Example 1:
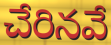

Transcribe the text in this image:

చేరినవే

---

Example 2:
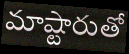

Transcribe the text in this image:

మాష్టారుతో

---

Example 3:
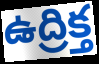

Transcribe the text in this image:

ఉద్రిక్త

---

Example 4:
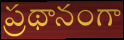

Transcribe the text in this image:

ప్రథానంగా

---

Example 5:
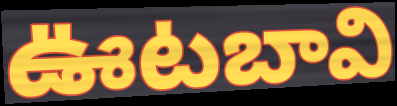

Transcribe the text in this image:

ఊటబావి